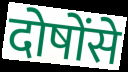
दोषोंसे